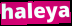
haleya